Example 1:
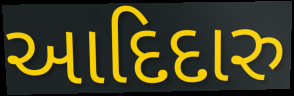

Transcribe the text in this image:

આદિદારુ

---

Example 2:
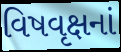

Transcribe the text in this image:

વિષવૃક્ષનાં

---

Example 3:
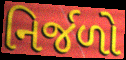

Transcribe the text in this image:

નિર્જળો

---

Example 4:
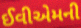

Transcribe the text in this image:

ઈવીએમની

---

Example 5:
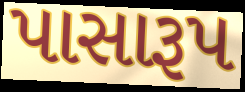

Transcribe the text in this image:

પાસારૂપ